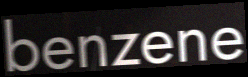
benzene